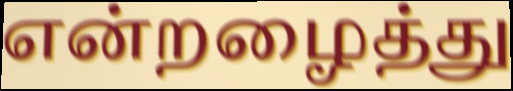
என்றழைத்து